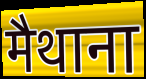
मैथाना